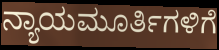
ನ್ಯಾಯಮೂರ್ತಿಗಳಿಗೆ